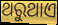
ଥରୁଥାଏ